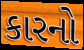
કારનો